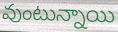
వుంటున్నాయి